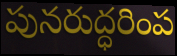
పునరుద్ధరింప